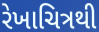
રેખાચિત્રથી